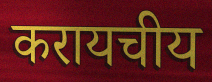
करायचीय